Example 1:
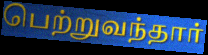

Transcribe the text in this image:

பெற்றுவந்தார்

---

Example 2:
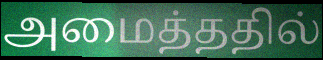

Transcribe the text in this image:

அமைத்ததில்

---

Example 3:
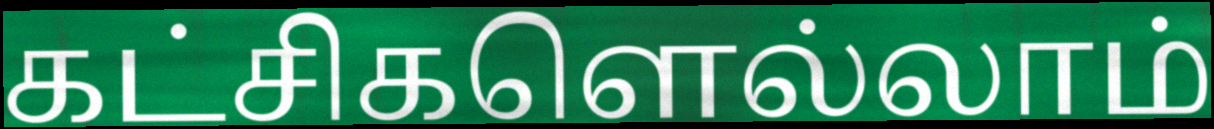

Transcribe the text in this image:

கட்சிகளெல்லாம்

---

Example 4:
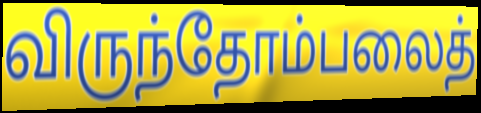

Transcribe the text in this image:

விருந்தோம்பலைத்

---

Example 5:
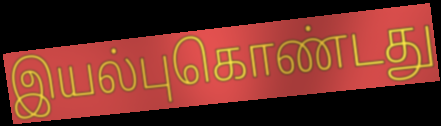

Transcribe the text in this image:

இயல்புகொண்டது